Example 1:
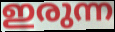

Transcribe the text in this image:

ഇരുന്ന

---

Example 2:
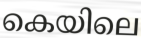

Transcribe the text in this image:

കെയിലെ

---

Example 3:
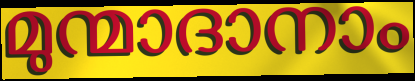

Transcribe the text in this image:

മുന്മാദാനാം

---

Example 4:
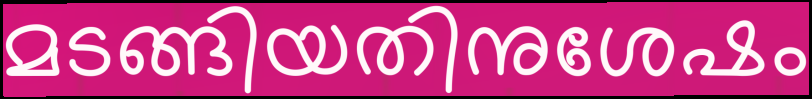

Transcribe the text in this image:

മടങ്ങിയതിനുശേഷം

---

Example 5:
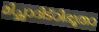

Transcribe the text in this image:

മിച്ഛാദിട്ഠിഭൂതാ